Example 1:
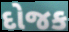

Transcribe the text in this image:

દોજક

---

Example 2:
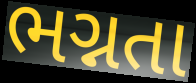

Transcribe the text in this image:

ભગ્નતા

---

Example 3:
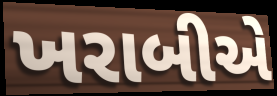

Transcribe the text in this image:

ખરાબીએ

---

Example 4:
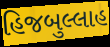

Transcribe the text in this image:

હિજબુલ્લાહ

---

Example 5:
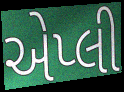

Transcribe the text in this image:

એપ્લી